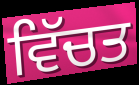
ਵਿੱਚਤ